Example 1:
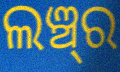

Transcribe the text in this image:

ଲଞ୍ଚ୍‍ର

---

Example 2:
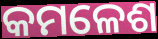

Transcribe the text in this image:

କମଳେଶ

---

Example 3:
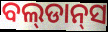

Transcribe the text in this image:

ବଲ୍‌ଡାନ୍‌ସ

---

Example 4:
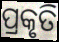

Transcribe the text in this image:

ପ୍ରକୃତି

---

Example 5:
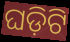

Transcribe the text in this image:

ଘଡ଼ିଟି